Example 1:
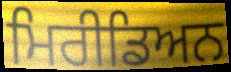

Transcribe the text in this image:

ਮਿਰੀਡਿਅਨ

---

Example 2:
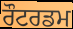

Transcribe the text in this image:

ਰੌਟਰਡਮ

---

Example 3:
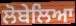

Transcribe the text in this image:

ਲੋਬੇਲਿਆ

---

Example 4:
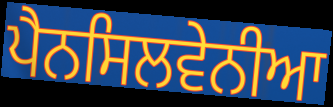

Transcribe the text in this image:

ਪੈਨਸਿਲਵੇਨੀਆ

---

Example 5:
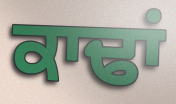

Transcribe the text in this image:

ਕਾਢਾਂ